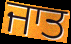
ਜਾਤ